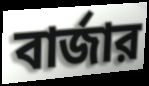
বার্জার